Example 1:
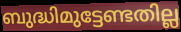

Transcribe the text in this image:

ബുദ്ധിമുട്ടേണ്ടതില്ല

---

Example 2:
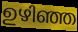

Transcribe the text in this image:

ഉഴിഞ്ഞ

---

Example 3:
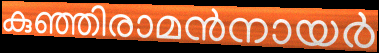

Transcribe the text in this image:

കുഞ്ഞിരാമൻനായർ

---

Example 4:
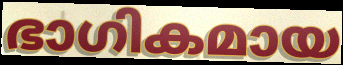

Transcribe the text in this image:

ഭാഗികമായ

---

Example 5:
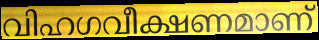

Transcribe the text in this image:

വിഹഗവീക്ഷണമാണ്